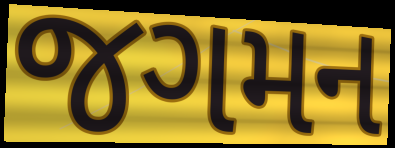
જગમન